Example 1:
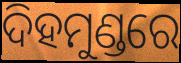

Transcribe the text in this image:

ଦିହମୁଣ୍ଡରେ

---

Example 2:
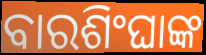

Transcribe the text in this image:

ବାରଶିଂଘାଙ୍କ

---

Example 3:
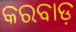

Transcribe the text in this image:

କରବାଡ଼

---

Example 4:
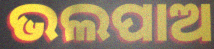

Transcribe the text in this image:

ଭଲପାଅ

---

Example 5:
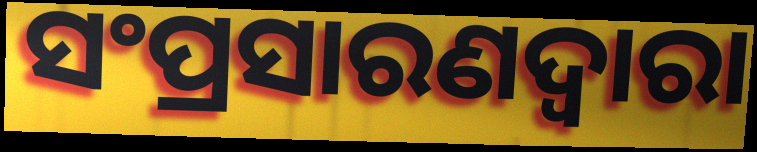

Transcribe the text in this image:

ସଂପ୍ରସାରଣଦ୍ଵାରା